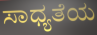
ಸಾಧ್ಯತೆಯ